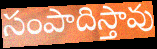
సంపాదిస్తావు